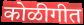
कोळीगीत